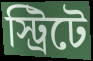
স্ট্রিটে